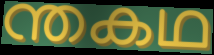
ന്തകഥ